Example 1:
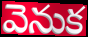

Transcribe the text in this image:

వెనుక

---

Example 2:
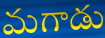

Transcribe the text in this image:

మగాడు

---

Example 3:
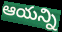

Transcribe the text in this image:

ఆయన్ని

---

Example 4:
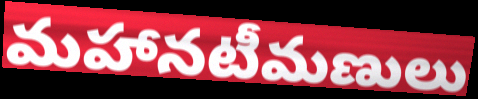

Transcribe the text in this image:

మహానటీమణులు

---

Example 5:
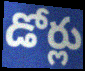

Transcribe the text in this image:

డోర్లు